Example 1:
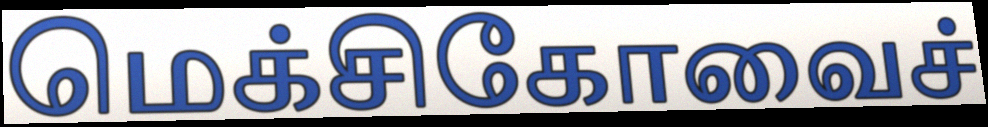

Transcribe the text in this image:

மெக்சிகோவைச்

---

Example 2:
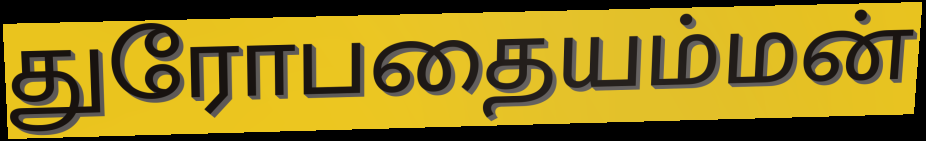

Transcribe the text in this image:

துரோபதையம்மன்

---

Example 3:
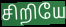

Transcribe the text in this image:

சிறியே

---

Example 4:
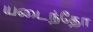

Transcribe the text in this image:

யடைந்தோ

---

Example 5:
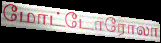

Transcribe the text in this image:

மோட்டோரோலா